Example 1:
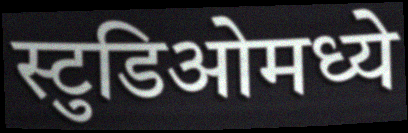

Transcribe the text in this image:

स्टुडिओमध्ये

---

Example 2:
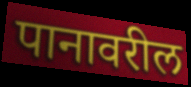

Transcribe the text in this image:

पानावरील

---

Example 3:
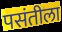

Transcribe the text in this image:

पसंतीला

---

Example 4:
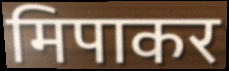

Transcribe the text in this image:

मिपाकर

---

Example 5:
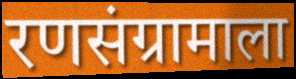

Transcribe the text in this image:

रणसंग्रामाला